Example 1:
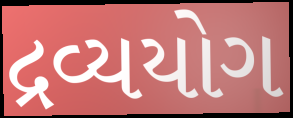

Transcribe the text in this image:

દ્રવ્યયોગ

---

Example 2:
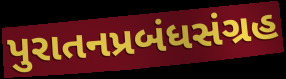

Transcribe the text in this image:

પુરાતનપ્રબંધસંગ્રહ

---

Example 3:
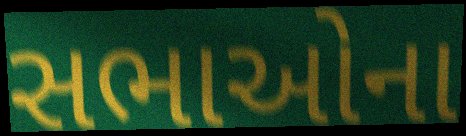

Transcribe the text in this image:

સભાઓના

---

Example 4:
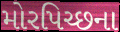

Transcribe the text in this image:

મોરપિચ્છના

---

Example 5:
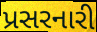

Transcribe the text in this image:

પ્રસરનારી